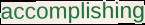
accomplishing